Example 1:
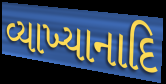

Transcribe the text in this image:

વ્યાખ્યાનાદિ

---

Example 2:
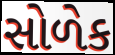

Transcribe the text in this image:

સોળેક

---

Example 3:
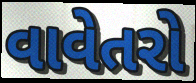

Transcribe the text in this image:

વાવેતરો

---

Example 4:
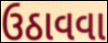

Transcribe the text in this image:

ઉઠાવવા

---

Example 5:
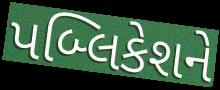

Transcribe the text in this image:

પબ્લિકેશને